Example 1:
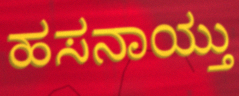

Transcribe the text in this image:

ಹಸನಾಯ್ತು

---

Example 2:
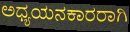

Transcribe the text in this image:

ಅಧ್ಯಯನಕಾರರಾಗಿ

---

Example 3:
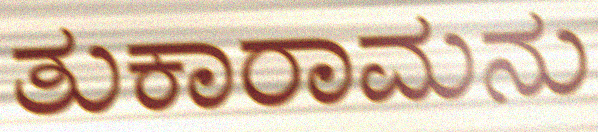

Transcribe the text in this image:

ತುಕಾರಾಮನು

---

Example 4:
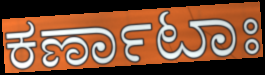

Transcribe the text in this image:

ಕರ್ಣಾಟಾಃ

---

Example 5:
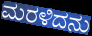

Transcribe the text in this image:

ಮರಳಿದನು